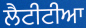
ਲੈਟੀਟੀਆ